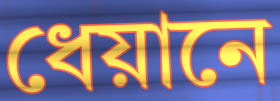
ধেয়ানে